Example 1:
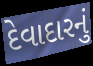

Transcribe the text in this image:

દેવાદારનું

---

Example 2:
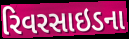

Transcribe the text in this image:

રિવરસાઇડના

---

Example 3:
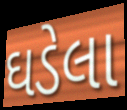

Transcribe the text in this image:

ઘડેલા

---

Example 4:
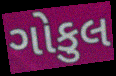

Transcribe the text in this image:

ગોકુલ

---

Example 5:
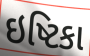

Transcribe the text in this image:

ઇષ્ટિકા